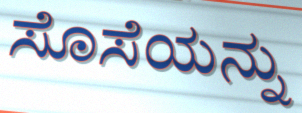
ಸೊಸೆಯನ್ನು